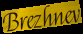
Brezhnev